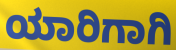
ಯಾರಿಗಾಗಿ